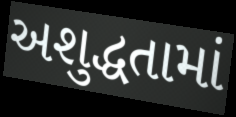
અશુદ્ધતામાં